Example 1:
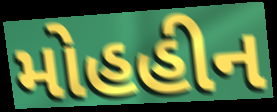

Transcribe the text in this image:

મોહહીન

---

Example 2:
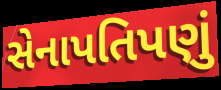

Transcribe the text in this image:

સેનાપતિપણું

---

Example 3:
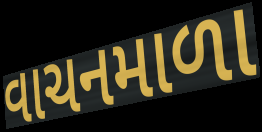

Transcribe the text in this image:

વાચનમાળા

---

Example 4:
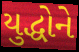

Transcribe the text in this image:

યુદ્ધોને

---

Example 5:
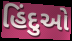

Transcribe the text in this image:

હિંદુઓ